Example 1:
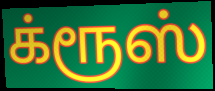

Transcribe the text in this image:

க்ரூஸ்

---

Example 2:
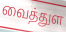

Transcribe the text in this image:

வைத்துள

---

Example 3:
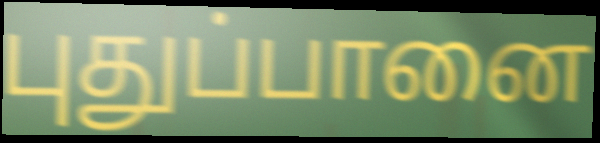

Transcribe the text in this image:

புதுப்பானை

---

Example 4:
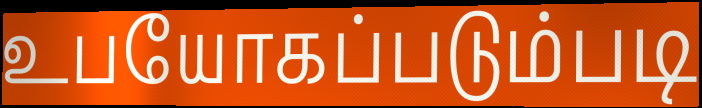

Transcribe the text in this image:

உபயோகப்படும்படி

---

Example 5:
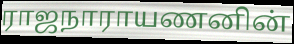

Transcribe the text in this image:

ராஜநாராயணனின்